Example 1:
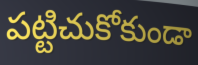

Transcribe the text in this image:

పట్టిచుకోకుండా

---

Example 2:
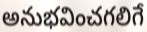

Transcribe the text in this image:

అనుభవించగలిగే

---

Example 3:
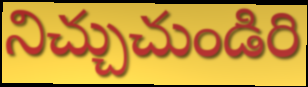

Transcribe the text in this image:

నిచ్చుచుండిరి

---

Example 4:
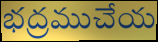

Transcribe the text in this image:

భద్రముచేయ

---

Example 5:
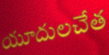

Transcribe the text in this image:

యూదులచేత